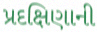
પ્રદક્ષિણાની